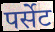
पर्सेट